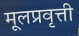
मूलप्रवृत्ती